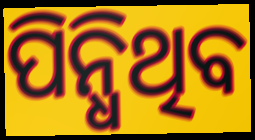
ପିନ୍ଧିଥିବ